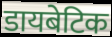
डायबेटिक